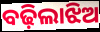
ବଢ଼ିଲାଝିଅ